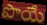
పొయే